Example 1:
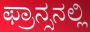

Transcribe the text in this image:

ಫ್ರಾನ್ಸನಲ್ಲಿ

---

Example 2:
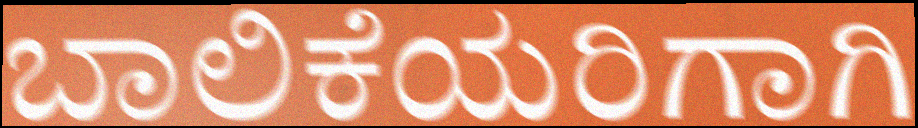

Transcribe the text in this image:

ಬಾಲಿಕೆಯರಿಗಾಗಿ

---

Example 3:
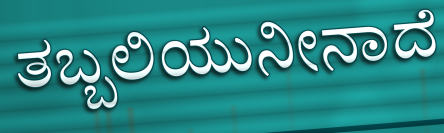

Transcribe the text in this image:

ತಬ್ಬಲಿಯುನೀನಾದೆ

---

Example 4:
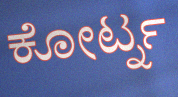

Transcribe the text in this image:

ಕೋರ್ಟ್ನ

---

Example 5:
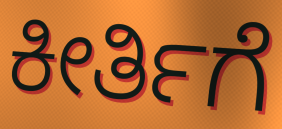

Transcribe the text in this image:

ಕೀರ್ತಿಗೆ